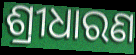
ଶ୍ରୀଧାରଣ